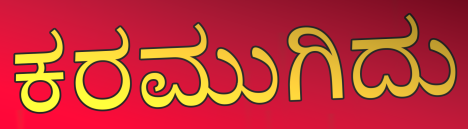
ಕರಮುಗಿದು